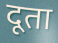
दूता